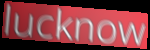
lucknow